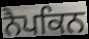
ਨੈਪਕਿਨ